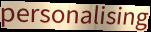
personalising